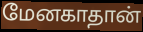
மேனகாதான்